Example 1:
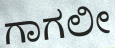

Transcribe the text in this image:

ಗಾಗಲೀ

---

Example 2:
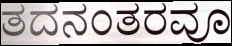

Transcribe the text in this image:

ತದನಂತರವೂ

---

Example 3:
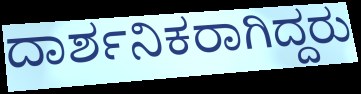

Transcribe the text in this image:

ದಾರ್ಶನಿಕರಾಗಿದ್ದರು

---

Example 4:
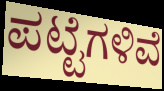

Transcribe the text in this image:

ಪಟ್ಟೆಗಳಿವೆ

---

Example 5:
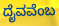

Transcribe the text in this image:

ದೈವವೆಂಬ